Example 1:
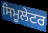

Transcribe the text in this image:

ਸਿਮੂਲੇਟਰ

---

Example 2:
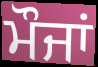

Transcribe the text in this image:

ਮੌਜਾਂ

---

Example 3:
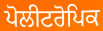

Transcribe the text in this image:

ਪੋਲੀਟਰੋਪਿਕ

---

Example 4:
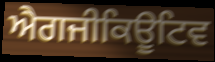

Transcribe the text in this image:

ਐਗਜੀਕਿਊਟਿਵ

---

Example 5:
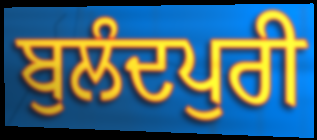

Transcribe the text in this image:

ਬੁਲੰਦਪੁਰੀ